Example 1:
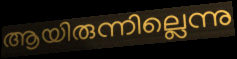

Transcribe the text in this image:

ആയിരുന്നില്ലെന്നു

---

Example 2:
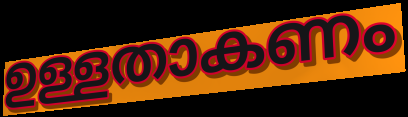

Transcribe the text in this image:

ഉള്ളതാകണം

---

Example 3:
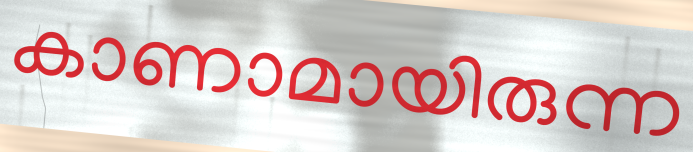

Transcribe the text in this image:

കാണാമായിരുന്ന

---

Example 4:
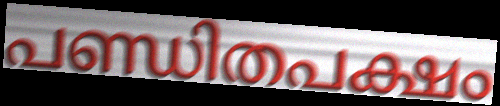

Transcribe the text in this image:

പണ്ഡിതപക്ഷം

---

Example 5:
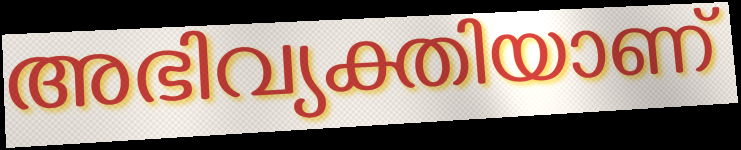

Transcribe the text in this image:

അഭിവ്യക്തിയാണ്